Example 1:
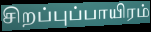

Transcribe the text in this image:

சிறப்புப்பாயிரம்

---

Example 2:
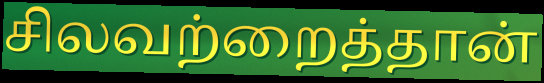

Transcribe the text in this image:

சிலவற்றைத்தான்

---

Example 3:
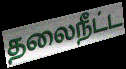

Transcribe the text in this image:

தலைநீட்ட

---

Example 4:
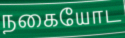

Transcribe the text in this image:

நகையோட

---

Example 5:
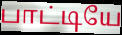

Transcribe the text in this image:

பாட்டியே